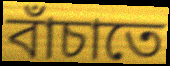
বাঁচাতে